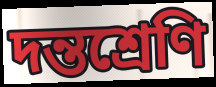
দন্তশ্রেণি